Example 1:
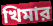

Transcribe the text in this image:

খিমার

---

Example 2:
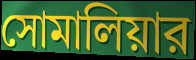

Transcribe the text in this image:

সোমালিয়ার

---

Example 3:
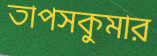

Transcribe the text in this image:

তাপসকুমার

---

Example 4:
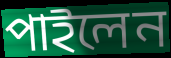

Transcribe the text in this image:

পাইলেন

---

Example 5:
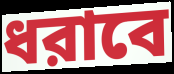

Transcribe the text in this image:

ধরাবে